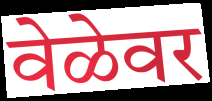
वेळेवर